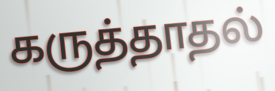
கருத்தாதல்